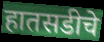
हातसडीचे